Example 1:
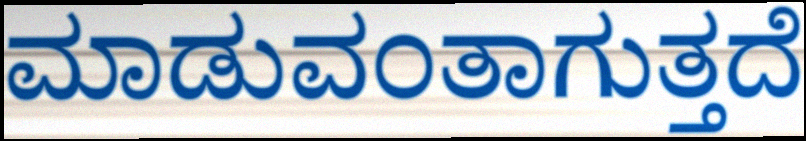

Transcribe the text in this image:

ಮಾಡುವಂತಾಗುತ್ತದೆ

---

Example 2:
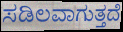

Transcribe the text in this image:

ಸಡಿಲವಾಗುತ್ತದೆ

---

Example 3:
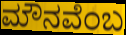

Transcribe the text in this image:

ಮೌನವೆಂಬ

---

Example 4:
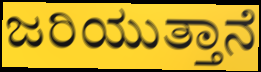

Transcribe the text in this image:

ಜರಿಯುತ್ತಾನೆ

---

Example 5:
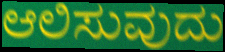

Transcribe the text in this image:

ಆಲಿಸುವುದು